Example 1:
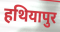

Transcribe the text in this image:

हथियापुर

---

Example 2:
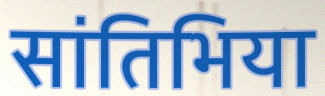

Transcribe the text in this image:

सांतिभिया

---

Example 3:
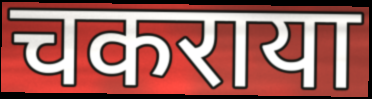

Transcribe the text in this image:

चकराया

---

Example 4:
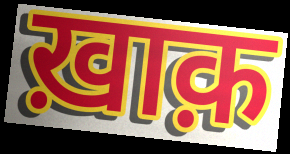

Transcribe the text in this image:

ख़ाक़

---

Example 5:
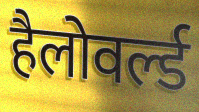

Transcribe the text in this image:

हैलोवर्ल्ड